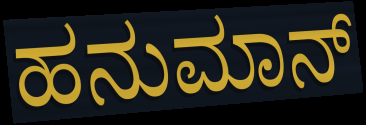
ಹನುಮಾನ್